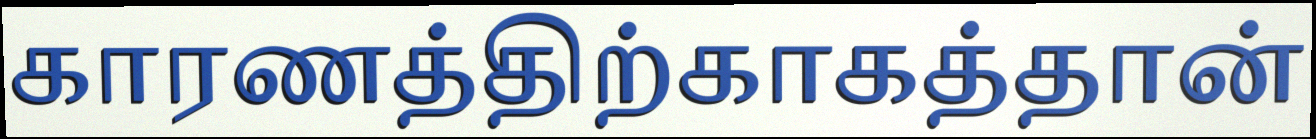
காரணத்திற்காகத்தான்